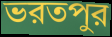
ভরতপুর